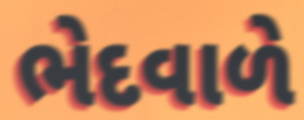
ભેદવાળે